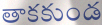
తాకకుండ